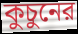
কুচুনের